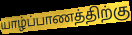
யாழ்ப்பாணத்திற்கு